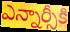
ఎన్నార్సీకి